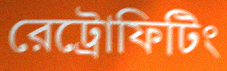
রেট্রোফিটিং